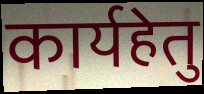
कार्यहेतु